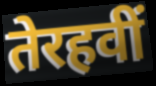
तेरहवीं